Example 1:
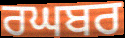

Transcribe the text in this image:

ਰਘਬਰ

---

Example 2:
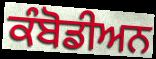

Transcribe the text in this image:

ਕੰਬੋਡੀਅਨ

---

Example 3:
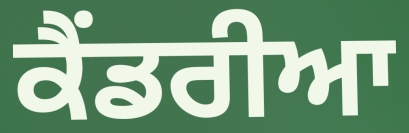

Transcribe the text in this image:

ਕੈਂਡਰੀਆ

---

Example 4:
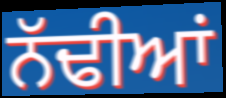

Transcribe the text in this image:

ਨੱਢੀਆਂ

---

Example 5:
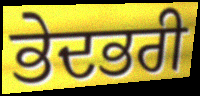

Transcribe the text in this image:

ਭੇਦਭਰੀ